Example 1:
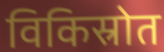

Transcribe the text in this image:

विकिस्रोत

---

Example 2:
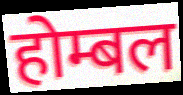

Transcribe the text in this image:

होम्बल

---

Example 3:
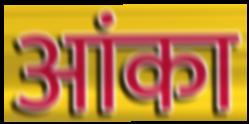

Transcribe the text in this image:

आंका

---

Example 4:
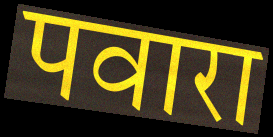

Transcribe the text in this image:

पवारा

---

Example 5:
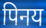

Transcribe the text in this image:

पिनय